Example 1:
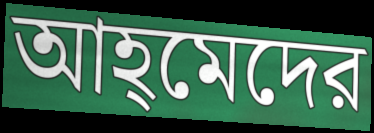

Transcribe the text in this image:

আহ্‌মেদের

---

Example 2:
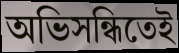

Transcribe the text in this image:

অভিসন্ধিতেই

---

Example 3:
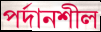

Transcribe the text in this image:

পর্দানশীল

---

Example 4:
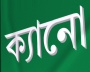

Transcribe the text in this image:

ক্যানো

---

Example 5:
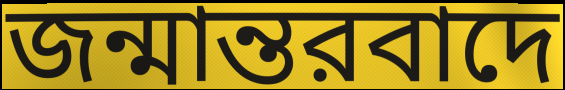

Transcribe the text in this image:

জন্মান্তরবাদে